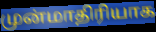
முன்மாதிரியாக